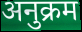
अनुक्रम